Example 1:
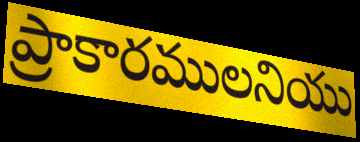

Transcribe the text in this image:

ప్రాకారములనియు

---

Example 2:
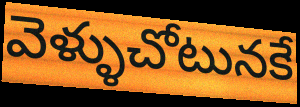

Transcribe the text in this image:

వెళ్ళుచోటునకే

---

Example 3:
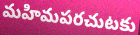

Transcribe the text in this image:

మహిమపరచుటకు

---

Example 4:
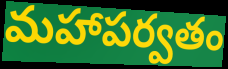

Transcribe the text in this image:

మహాపర్వతం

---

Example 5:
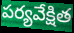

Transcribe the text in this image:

పర్యవేక్షిత